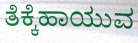
ತೆಕ್ಕೆಹಾಯುವ